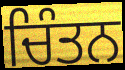
ਚਿੰਤਨ